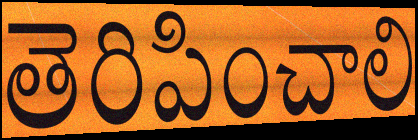
తెరిపించాలి